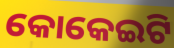
କୋକେଇଟି